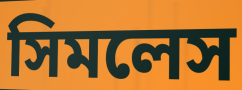
সিমলেস